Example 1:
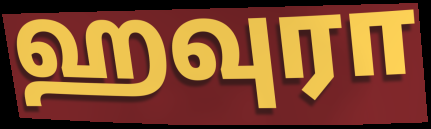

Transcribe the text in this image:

ஹவுரா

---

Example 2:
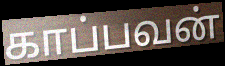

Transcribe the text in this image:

காப்பவன்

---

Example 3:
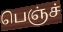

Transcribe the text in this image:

பெஞ்ச்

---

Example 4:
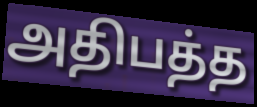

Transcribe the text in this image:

அதிபத்த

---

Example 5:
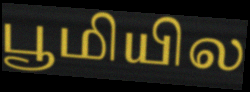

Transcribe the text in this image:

பூமியில